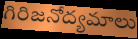
గిరిజనోద్యమాలు